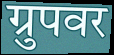
ग्रुपवर